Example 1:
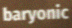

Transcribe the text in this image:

baryonic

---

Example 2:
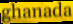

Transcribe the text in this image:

ghanada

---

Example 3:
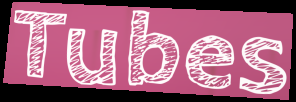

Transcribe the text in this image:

Tubes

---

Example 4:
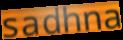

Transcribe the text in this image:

sadhna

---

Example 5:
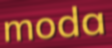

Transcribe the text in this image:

moda